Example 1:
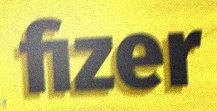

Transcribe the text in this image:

fizer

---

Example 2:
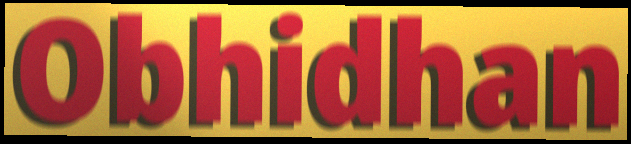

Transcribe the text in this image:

Obhidhan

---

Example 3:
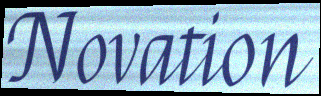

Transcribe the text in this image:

Novation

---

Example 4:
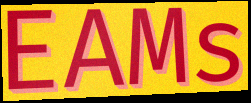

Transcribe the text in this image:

EAMs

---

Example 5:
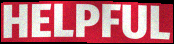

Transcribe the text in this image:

HELPFUL